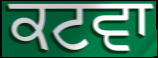
ਕਟਵਾ